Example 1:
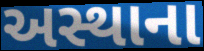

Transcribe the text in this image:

અસ્થાના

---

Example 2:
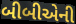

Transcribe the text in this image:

બીબીએની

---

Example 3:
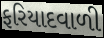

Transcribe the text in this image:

ફરિયાદવાળી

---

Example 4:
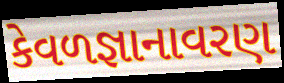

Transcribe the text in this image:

કેવળજ્ઞાનાવરણ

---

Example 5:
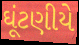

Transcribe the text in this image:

ઘૂંટણીયે